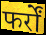
फर्रों